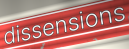
dissensions